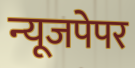
न्‍यूजपेपर